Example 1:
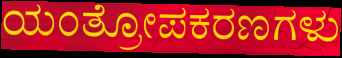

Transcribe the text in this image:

ಯಂತ್ರೋಪಕರಣಗಳು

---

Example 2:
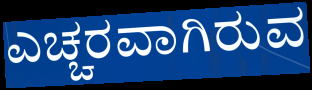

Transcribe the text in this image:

ಎಚ್ಚರವಾಗಿರುವ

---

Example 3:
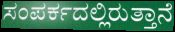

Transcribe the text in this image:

ಸಂಪರ್ಕದಲ್ಲಿರುತ್ತಾನೆ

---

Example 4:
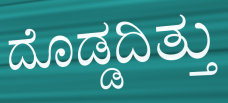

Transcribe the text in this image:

ದೊಡ್ಡದಿತ್ತು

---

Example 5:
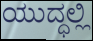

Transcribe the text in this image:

ಯುದ್ಧಲ್ಲಿ